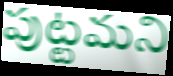
పుట్టమని